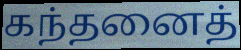
கந்தனைத்